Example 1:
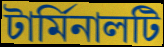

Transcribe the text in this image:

টার্মিনালটি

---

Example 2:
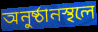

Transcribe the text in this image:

অনুষ্ঠানস্থলে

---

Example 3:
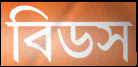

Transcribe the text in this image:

বিডস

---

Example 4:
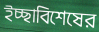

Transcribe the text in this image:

ইচ্ছাবিশেষের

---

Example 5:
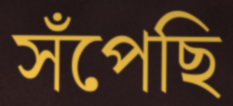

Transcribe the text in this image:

সঁপেছি